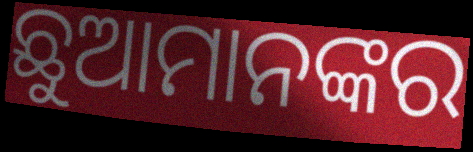
ଛୁଆମାନଙ୍କର